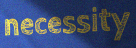
necessity